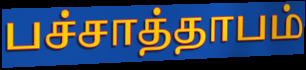
பச்சாத்தாபம்